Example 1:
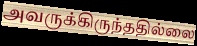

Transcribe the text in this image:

அவருக்கிருந்ததில்லை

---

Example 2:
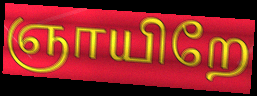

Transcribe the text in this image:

ஞாயிறே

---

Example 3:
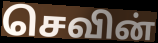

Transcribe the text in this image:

செவின்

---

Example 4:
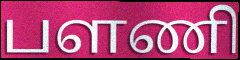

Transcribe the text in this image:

பளணி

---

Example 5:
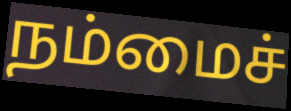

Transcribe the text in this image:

நம்மைச்